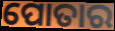
ପୋତାର